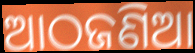
ଆଠଜଣିଆ